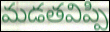
మడతవిప్పి